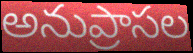
అనుప్రాసల